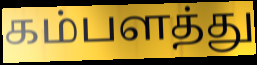
கம்பளத்து